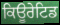
ਕਿਊਰੇਟਿਡ